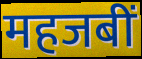
महजबीं